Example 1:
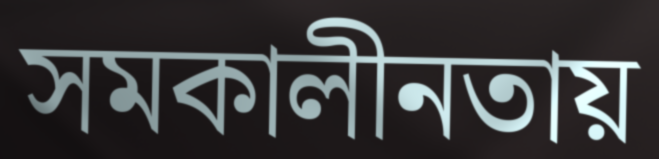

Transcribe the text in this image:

সমকালীনতায়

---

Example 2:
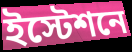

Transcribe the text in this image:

ইস্টেশনে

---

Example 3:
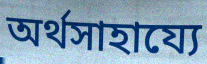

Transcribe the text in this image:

অর্থসাহায্যে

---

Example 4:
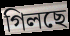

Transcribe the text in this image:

গিলছে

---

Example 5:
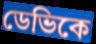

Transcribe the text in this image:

ডেভিকে